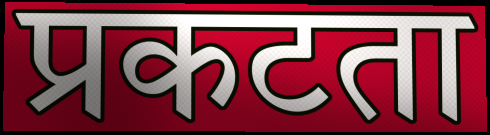
प्रकटता